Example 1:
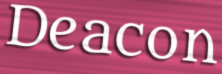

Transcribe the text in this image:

Deacon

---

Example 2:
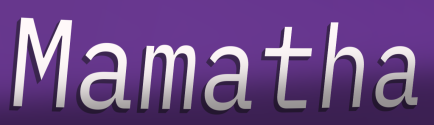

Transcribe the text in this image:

Mamatha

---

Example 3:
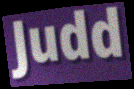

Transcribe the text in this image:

Judd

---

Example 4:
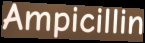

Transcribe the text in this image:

Ampicillin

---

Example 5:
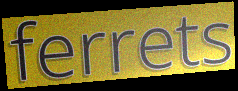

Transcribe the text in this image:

ferrets